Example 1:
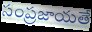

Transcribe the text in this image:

సంప్రజాయతే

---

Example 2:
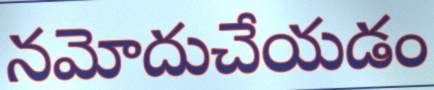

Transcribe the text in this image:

నమోదుచేయడం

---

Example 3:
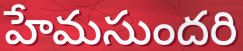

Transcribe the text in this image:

హేమసుందరి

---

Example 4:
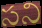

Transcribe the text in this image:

సని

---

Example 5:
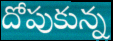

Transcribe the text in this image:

దోపుకున్న